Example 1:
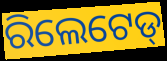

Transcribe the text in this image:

ରିଲେଟେଡ୍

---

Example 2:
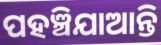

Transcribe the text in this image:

ପହଞ୍ଚିଯାଆନ୍ତି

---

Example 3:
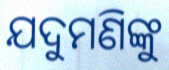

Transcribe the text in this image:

ଯଦୁମଣିଙ୍କୁ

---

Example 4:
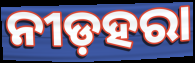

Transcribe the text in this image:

ନୀଡ଼ହରା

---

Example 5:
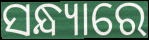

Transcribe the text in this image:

ସନ୍ଧ୍ୟାରେ